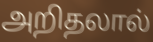
அறிதலால்